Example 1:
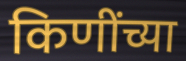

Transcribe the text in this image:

किणींच्या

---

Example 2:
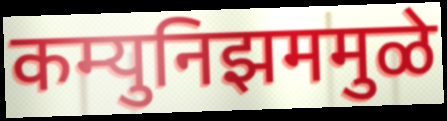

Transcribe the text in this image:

कम्युनिझममुळे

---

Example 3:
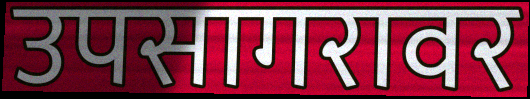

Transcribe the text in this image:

उपसागरावर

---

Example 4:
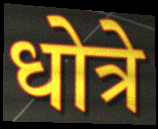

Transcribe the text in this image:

धोत्रे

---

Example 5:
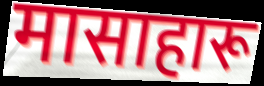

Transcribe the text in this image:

मासाहारू